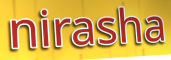
nirasha